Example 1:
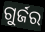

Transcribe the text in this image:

ଗୁର୍ଜର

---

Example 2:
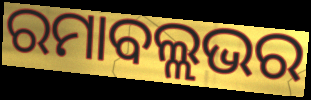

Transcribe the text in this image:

ରମାବଲ୍ଲଭର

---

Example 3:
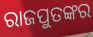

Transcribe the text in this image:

ରାଜପୁତଙ୍କର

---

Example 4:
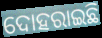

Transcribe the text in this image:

ଦୋହରାଇଛି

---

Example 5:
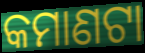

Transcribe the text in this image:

କମାଣଟା